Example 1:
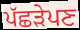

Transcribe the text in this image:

ਪੱਛੜੇਪਣ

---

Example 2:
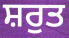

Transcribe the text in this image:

ਸ਼ਰੁਤ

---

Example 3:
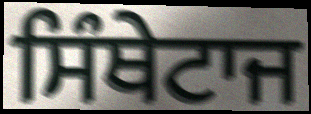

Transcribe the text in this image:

ਸਿੰਥੇਟਾਜ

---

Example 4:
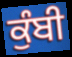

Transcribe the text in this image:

ਕੁੰਬੀ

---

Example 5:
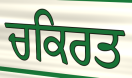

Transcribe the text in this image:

ਚਕਿਰਤ